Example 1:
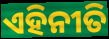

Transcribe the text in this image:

ଏହିନୀତି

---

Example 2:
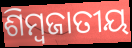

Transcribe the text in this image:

ଶିମ୍ବଜାତୀୟ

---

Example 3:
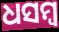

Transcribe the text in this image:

ଧସମ୍ବ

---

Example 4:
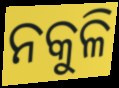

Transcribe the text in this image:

ନକୁଳି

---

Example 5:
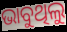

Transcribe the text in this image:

ଭାବୁଥିଲୁ